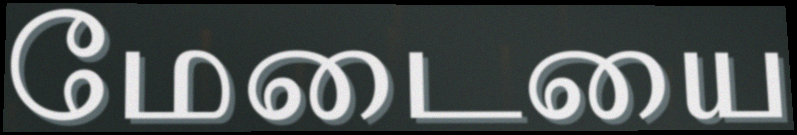
மேடையை